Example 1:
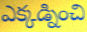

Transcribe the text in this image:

ఎక్కడ్నించి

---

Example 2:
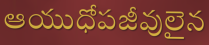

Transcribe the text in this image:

ఆయుధోపజీవులైన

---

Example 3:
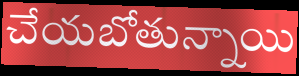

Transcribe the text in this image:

చేయబోతున్నాయి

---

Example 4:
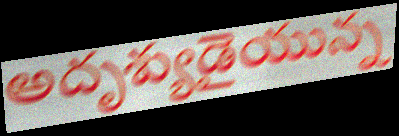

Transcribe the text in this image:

అదృశ్యుడైయున్న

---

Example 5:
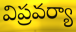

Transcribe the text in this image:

విప్రవర్యా